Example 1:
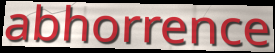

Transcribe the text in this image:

abhorrence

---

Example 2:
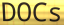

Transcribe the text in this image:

DOCs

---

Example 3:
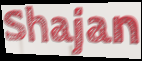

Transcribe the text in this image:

Shajan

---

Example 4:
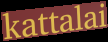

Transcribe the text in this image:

kattalai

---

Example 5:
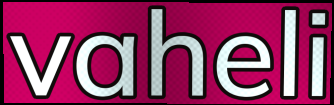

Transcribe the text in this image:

vaheli